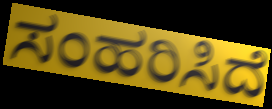
ಸಂಹರಿಸಿದೆ